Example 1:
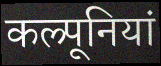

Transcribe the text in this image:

कल्पूनियां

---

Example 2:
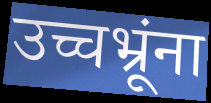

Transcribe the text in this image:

उच्चभ्रूंना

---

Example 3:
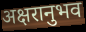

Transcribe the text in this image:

अक्षरानुभव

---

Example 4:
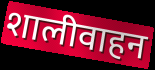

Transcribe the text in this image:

शालीवाहन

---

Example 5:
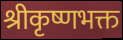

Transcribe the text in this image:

श्रीकृष्णभक्त